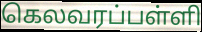
கெலவரப்பள்ளி